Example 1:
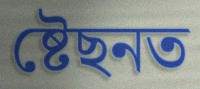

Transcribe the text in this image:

ষ্টেছনত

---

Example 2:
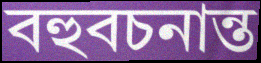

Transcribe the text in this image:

বহুবচনান্ত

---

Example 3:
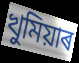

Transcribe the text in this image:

খুমিয়াৰ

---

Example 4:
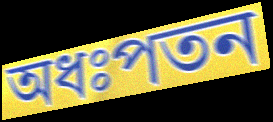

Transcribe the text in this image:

অধঃপতন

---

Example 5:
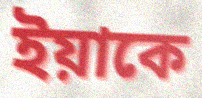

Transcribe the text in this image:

ইয়াকে